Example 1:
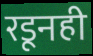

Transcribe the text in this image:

रडूनही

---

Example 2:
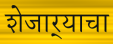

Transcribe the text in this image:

शेजार्याचा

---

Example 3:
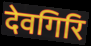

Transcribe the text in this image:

देवगिरि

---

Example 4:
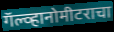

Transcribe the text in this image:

गॅल्व्हानोमीटराचा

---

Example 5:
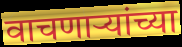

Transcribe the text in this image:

वाचणार्‍यांच्या